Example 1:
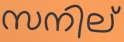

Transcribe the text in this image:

സനില്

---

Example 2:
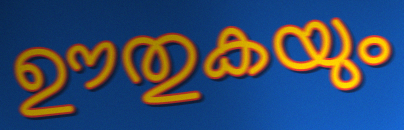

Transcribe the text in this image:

ഊതുകയും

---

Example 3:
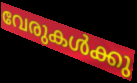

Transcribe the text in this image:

വേരുകൾക്കു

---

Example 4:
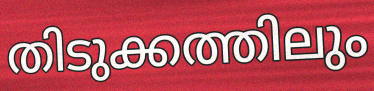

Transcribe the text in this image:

തിടുക്കത്തിലും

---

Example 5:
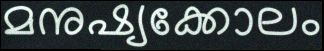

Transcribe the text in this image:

മനുഷ്യക്കോലം